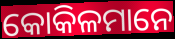
କୋକିଳମାନେ